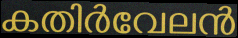
കതിർവേലൻ